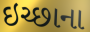
ઇચ્છાના